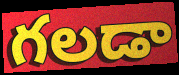
గలడా